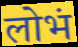
लोभं